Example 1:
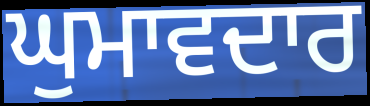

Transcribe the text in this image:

ਘੁਮਾਵਦਾਰ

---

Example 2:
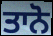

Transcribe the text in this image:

ਤਾਨੋ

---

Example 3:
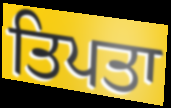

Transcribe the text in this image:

ਤਿਪਤਾ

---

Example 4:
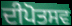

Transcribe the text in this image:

ਦੀਪੋਤਸਵ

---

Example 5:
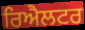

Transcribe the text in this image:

ਰਿਐਲਟਰ